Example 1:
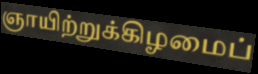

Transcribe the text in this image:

ஞாயிற்றுக்கிழமைப்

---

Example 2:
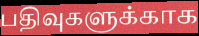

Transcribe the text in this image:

பதிவுகளுக்காக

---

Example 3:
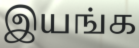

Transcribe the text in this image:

இயங்க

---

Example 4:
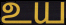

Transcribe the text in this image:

உய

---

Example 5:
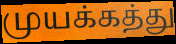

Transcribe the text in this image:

முயக்கத்து